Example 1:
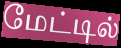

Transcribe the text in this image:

மேட்டில்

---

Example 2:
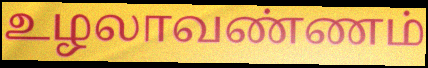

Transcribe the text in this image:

உழலாவண்ணம்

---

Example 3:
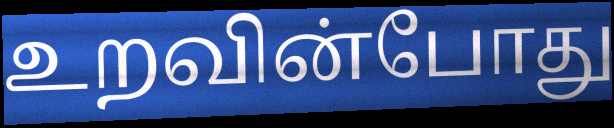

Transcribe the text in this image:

உறவின்போது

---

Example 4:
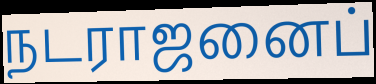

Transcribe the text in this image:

நடராஜனைப்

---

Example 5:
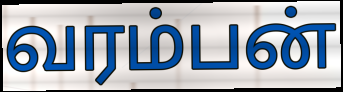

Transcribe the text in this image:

வரம்பன்